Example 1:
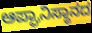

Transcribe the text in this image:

ಆಪ್ಘಾನಿಸ್ಥಾನದ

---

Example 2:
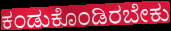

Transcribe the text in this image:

ಕಂಡುಕೊಂಡಿರಬೇಕು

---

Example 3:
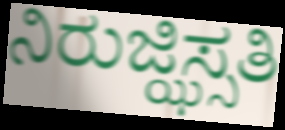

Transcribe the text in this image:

ನಿರುಜ್ಝಿಸ್ಸತಿ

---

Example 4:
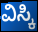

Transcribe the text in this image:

ವಿಸ್ಕಿ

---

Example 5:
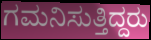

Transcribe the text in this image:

ಗಮನಿಸುತ್ತಿದ್ದರು